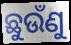
ଛୁଉଁଣୁ